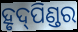
ହୃଦ୍‌ପିଣ୍ଡର